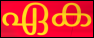
ഏക